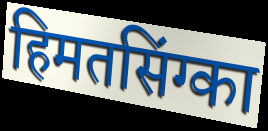
हिमतसिंग्का